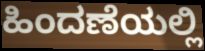
ಹಿಂದಣೆಯಲ್ಲಿ